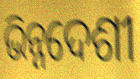
ଭିନ୍ନଦେଶୀ